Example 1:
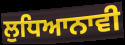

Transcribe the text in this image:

ਲੁਧਿਆਨਾਵੀ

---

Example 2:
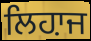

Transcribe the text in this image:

ਲਿਹ਼ਾਜ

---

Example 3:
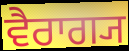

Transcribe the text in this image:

ਵੈਰਾਗ੍ਯ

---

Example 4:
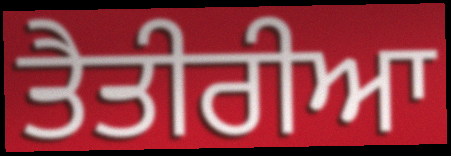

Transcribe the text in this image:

ਤੈਤੀਰੀਆ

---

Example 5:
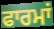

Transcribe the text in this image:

ਫਾਰਮਾਂ